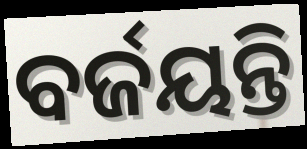
ବର୍ଜୟନ୍ତି